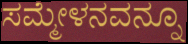
ಸಮ್ಮೇಳನವನ್ನೂ